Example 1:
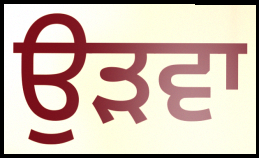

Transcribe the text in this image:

ਉੜਵਾ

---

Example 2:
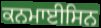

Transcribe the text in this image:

ਕਨਮਾਈਸਿਨ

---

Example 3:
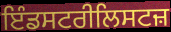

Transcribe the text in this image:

ਇੰਡਸਟਰੀਲਿਸਟਜ਼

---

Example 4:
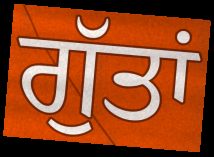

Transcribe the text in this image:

ਗੁੱਤਾਂ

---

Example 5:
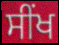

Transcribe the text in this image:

ਸੀਂਖ